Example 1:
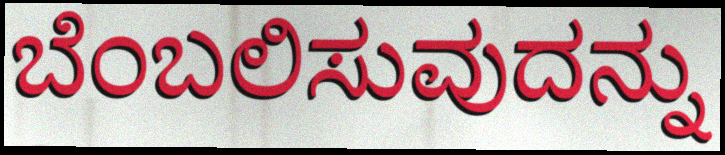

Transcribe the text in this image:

ಬೆಂಬಲಿಸುವುದನ್ನು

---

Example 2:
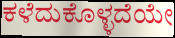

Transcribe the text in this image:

ಕಳೆದುಕೊಳ್ಳದೆಯೇ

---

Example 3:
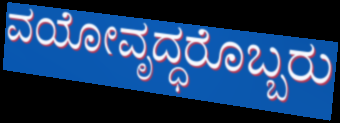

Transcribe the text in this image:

ವಯೋವೃದ್ಧರೊಬ್ಬರು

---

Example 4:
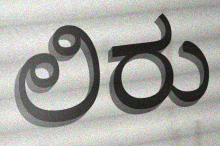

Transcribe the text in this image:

ಲಿರು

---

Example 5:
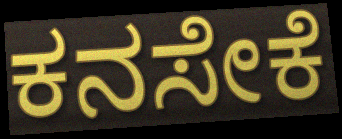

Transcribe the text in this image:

ಕನಸೇಕೆ